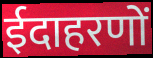
ईदाहरणों